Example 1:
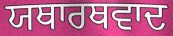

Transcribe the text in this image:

ਯਥਾਰਥਵਾਦ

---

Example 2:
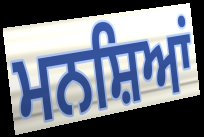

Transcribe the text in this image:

ਮਨਸ਼ਿਆਂ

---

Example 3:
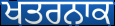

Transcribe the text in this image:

ਖਤਰਨਾਕ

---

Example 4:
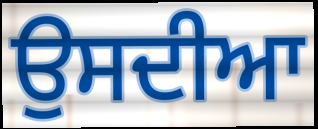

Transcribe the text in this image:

ਉਸਦੀਆ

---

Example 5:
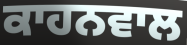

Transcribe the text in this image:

ਕਾਹਨਵਾਲ